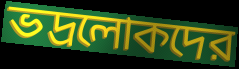
ভদ্রলোকদের